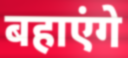
बहाएंगे